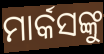
ମାର୍କସଙ୍କୁ